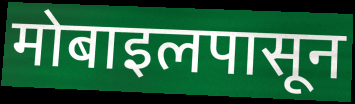
मोबाइलपासून